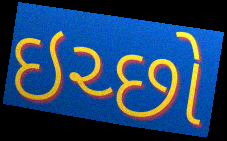
ઇચ્છો